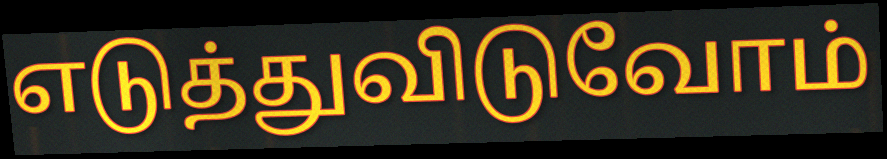
எடுத்துவிடுவோம்